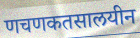
णचणकतसालयीन